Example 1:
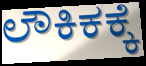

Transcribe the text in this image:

ಲೌಕಿಕಕ್ಕೆ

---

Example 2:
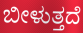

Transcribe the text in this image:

ಬೀಳುತ್ತದೆ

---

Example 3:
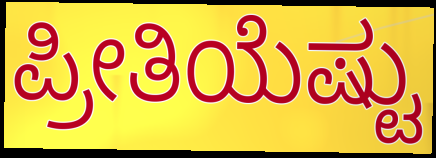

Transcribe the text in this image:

ಪ್ರೀತಿಯೆಷ್ಟು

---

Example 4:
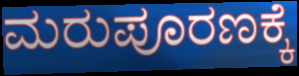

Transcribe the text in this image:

ಮರುಪೂರಣಕ್ಕೆ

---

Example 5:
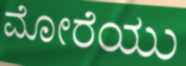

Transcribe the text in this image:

ಮೋರೆಯು